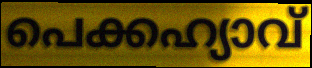
പെക്കഹ്യാവ്